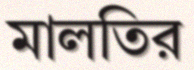
মালতির